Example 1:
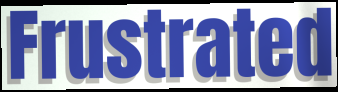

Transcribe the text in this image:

Frustrated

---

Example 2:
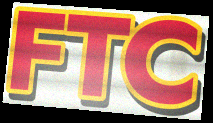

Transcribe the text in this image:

FTC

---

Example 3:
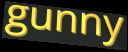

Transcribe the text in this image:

gunny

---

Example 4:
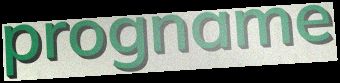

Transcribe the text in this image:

progname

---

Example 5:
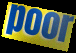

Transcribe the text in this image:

poor